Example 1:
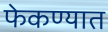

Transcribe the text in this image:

फेकण्यात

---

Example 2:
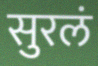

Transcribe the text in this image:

सुरलं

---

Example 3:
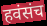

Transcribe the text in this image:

हवंसंच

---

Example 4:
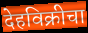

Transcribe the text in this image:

देहविक्रीचा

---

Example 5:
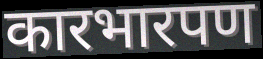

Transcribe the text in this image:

कारभारपण